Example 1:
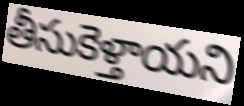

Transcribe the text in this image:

తీసుకెళ్తాయని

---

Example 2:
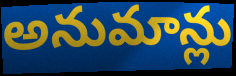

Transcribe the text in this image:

అనుమాన్లు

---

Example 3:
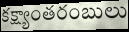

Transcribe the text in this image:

కక్ష్యాంతరంబులు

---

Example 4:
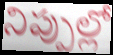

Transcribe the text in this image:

నిప్పుల్లో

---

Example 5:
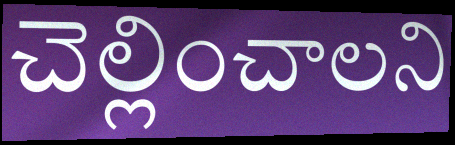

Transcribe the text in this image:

చెల్లించాలని